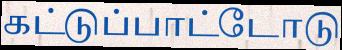
கட்டுப்பாட்டோடு